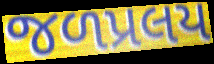
જળપ્રલય